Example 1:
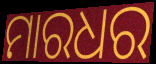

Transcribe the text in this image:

ମାରଧର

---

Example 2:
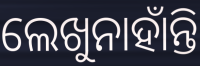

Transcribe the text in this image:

ଲେଖୁନାହାଁନ୍ତି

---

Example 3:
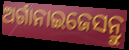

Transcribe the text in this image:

ଅର୍ଗାନାଇଜେସନ୍ରୁ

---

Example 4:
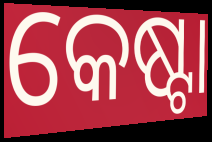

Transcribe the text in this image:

କେଷ୍ଟା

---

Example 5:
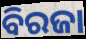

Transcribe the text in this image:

ବିରଜା